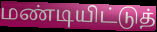
மண்டியிட்டுத்